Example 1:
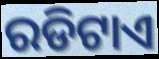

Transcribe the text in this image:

ରଡିଟାଏ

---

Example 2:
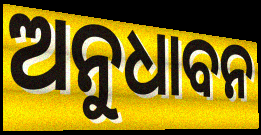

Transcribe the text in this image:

ଅନୁଧାବନ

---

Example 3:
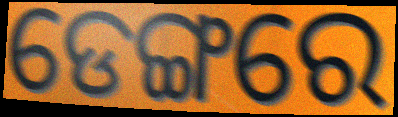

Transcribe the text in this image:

ଡେଙ୍ଗରେ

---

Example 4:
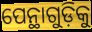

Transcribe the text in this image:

ପେନ୍ଥାଗୁଡ଼ିକୁ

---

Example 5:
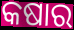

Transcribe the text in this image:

କଷାର